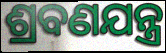
ଶ୍ରବଣଯନ୍ତ୍ର